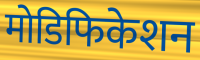
मोडिफिकेशन